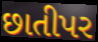
છાતીપર